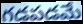
గడపడమే